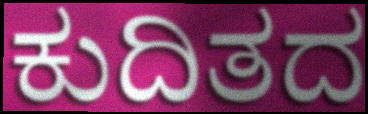
ಕುದಿತದ